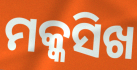
ମକ୍କସିଖ